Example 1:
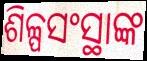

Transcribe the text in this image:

ଶିଳ୍ପସଂସ୍ଥାଙ୍କ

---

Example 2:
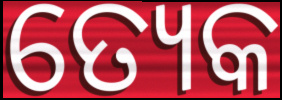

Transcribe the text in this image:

ତ୍ଯେକ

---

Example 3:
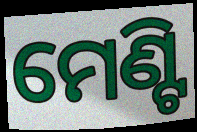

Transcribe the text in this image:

ମେଣ୍ଟି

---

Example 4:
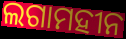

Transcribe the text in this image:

ଲଗାମହୀନ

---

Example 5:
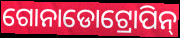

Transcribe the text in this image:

ଗୋନାଡୋଟ୍ରୋପିନ୍